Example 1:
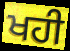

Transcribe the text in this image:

ਖਹੀ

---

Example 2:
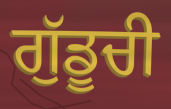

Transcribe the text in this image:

ਗੁੱਡੂਚੀ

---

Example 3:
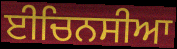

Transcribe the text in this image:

ਈਚਿਨਸੀਆ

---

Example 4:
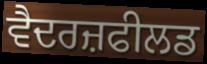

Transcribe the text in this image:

ਵੈਦਰਜ਼ਫੀਲਡ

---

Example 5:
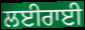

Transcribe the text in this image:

ਲਈਰਾਈ